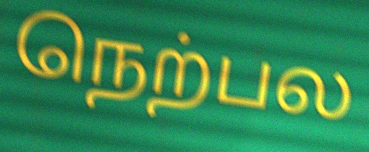
நெற்பல